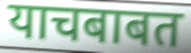
याचबाबत